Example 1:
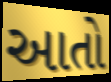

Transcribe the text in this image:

આતો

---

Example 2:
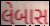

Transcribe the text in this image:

લેબાસ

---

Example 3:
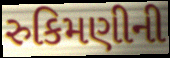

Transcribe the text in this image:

રુકિમણીની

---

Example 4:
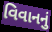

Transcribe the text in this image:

વિવાનનું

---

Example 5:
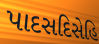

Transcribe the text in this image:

પાદસદિસેહિ